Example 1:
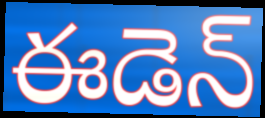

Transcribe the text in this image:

ఈడెన్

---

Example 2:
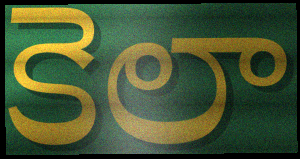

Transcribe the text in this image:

కెలా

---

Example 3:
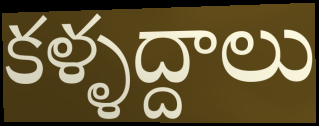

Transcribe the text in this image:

కళ్ళద్దాలు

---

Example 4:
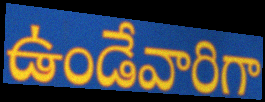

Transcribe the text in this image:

ఉండేవారిగా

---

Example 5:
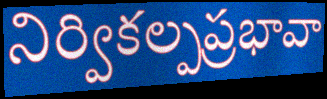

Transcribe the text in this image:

నిర్వికల్పప్రభావా